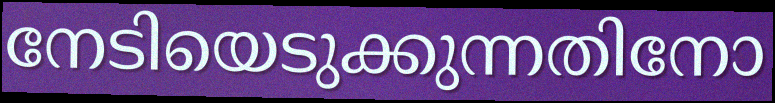
നേടിയെടുക്കുന്നതിനോ